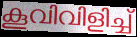
കൂവിവിളിച്ച്